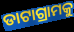
ଡାଟାଗ୍ରାମକୁ